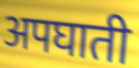
अपघाती